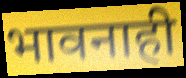
भावनाही